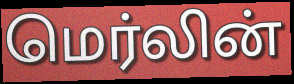
மெர்லின்